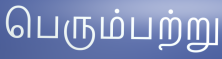
பெரும்பற்று